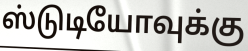
ஸ்டுடியோவுக்கு